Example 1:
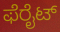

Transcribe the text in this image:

ಫೆರೈಟ್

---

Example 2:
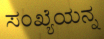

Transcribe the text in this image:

ಸಂಖ್ಯೆಯನ್ನ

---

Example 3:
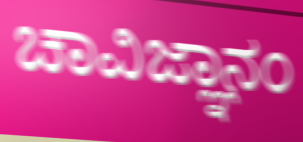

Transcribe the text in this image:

ಚಾವಿಜ್ಞಾನಂ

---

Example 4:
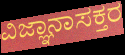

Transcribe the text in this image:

ವಿಜ್ಞಾನಾಸಕ್ತರ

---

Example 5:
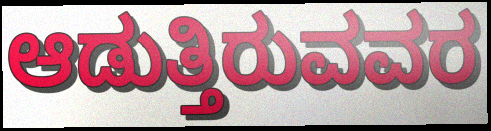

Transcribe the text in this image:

ಆಡುತ್ತಿರುವವರ